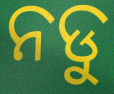
ନଡୁ